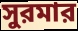
সুরমার